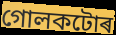
গোলকটোৰ